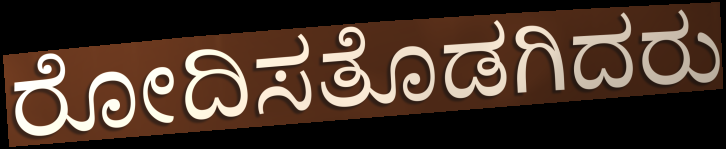
ರೋದಿಸತೊಡಗಿದರು